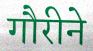
गौरीने